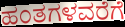
ಹಂತಗಳವರೆಗೆ